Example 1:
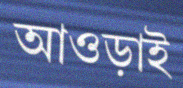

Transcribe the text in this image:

আওড়াই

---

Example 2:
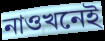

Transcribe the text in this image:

নাওখনেই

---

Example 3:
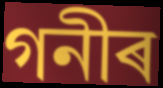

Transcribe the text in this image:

গনীৰ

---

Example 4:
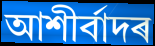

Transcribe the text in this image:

আশীৰ্বাদৰ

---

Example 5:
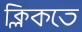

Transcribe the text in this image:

ক্লিকতে